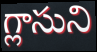
గ్లాసుని